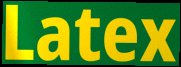
Latex